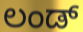
ಲಂಡ್